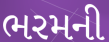
ભરમની